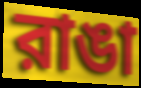
রাঙা